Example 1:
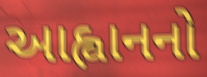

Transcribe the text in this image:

આહ્વાનનો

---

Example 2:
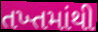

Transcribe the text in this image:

તખ્તમાંથી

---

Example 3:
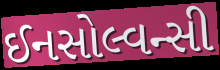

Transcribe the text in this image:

ઈનસોલ્વન્સી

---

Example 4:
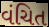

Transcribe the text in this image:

વંચિત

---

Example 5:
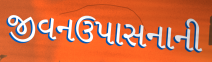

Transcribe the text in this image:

જીવનઉપાસનાની